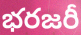
భరజరీ